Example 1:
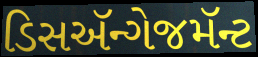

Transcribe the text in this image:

ડિસઍન્ગેજમૅન્ટ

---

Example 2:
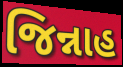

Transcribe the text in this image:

જિન્નાહ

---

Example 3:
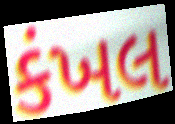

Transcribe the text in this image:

કંખલ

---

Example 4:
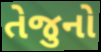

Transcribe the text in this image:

તેજુનો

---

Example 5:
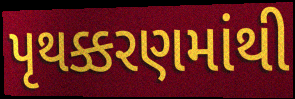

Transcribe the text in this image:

પૃથક્કરણમાંથી